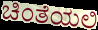
ಚಿಂತೆಯಲಿ